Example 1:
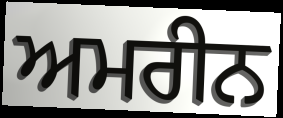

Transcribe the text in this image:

ਅਮਰੀਨ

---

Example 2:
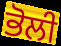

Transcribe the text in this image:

ਭੋਲੀ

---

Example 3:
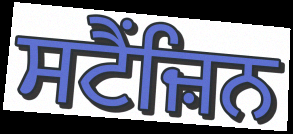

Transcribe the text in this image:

ਸਟੈਂਜ਼ਿਨ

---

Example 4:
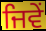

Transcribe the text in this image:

ਜਿਵੇਂ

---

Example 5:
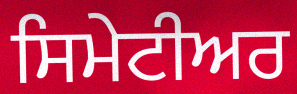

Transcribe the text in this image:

ਸਿਮੇਟੀਅਰ